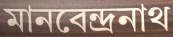
মানবেন্দ্রনাথ